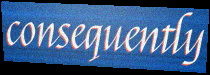
consequently